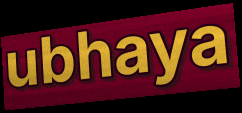
ubhaya